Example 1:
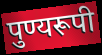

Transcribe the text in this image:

पुण्यरूपी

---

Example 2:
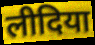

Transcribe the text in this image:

लीदिया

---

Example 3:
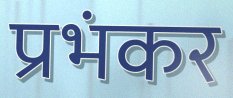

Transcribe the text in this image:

प्रभंकर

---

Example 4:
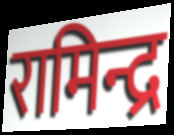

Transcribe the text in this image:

रामिन्द्र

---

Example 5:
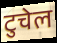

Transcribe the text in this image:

टुचेल